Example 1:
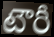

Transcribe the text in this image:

టౌరీ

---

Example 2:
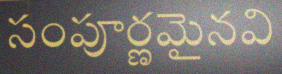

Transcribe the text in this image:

సంపూర్ణమైనవి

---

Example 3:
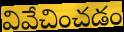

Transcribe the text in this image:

వివేచించడం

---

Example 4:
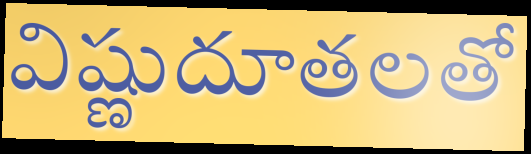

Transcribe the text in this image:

విష్ణుదూతలతో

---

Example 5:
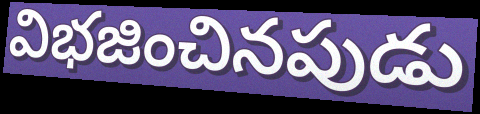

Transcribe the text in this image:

విభజించినపుడు